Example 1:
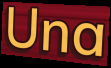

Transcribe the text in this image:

Una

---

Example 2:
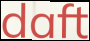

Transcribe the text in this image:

daft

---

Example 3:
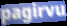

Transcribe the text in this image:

pagirvu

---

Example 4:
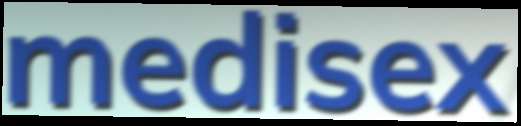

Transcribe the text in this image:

medisex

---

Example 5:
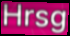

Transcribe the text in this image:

Hrsg